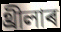
থ্ৰীলাৰ